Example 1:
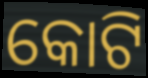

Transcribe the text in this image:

କୋଟି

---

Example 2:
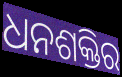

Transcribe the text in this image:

ଧନଶକ୍ତିର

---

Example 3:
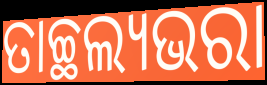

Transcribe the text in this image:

ତାଚ୍ଛଲ୍ୟଭରା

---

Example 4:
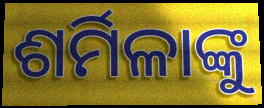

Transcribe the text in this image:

ଶର୍ମିଳାଙ୍କୁ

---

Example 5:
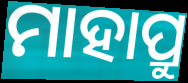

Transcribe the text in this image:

ମାହାପ୍ରୁ